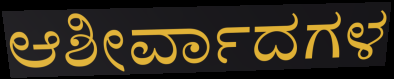
ಆಶೀರ್ವಾದಗಳ